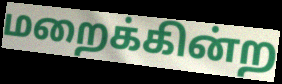
மறைக்கின்ற